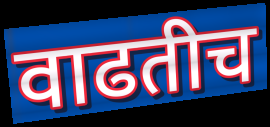
वाढतीच